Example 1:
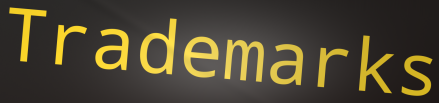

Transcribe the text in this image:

Trademarks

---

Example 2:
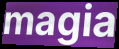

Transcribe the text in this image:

magia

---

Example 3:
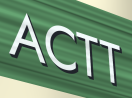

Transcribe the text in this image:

ACTT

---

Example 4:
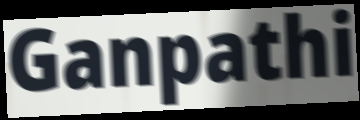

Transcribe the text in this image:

Ganpathi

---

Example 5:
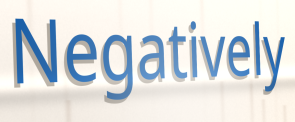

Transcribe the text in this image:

Negatively